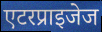
एटरप्राइजेज